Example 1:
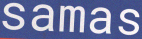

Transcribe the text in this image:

samas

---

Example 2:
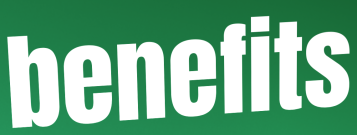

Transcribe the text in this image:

benefits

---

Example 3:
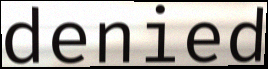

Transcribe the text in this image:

denied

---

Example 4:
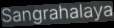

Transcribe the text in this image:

Sangrahalaya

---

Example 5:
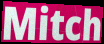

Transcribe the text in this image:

Mitch